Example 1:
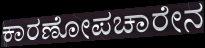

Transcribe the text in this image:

ಕಾರಣೋಪಚಾರೇನ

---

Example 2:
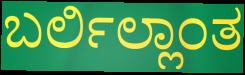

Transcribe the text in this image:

ಬರ್ಲಿಲ್ಲಾಂತ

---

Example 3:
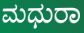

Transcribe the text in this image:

ಮಧುರಾ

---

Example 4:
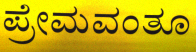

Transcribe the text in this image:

ಪ್ರೇಮವಂತೂ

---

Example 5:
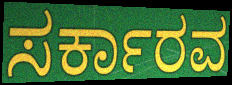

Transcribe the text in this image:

ಸರ್ಕಾರವ